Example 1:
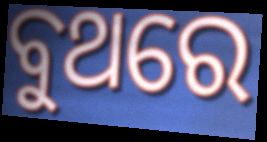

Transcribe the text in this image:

ବୁଥରେ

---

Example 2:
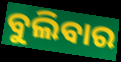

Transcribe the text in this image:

ବୁଲିବାର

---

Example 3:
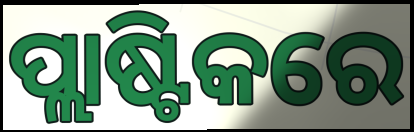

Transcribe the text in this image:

ପ୍ଲାଷ୍ଟିକରେ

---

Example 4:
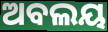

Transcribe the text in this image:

ଅବଲୟ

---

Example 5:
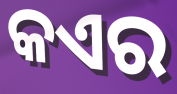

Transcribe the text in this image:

କଏର